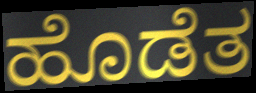
ಹೊಡೆತ